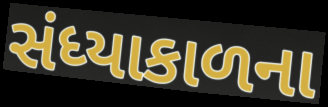
સંધ્યાકાળના